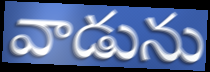
వాడును